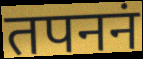
तपननं